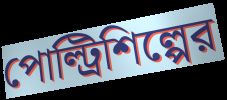
পোল্ট্রিশিল্পের